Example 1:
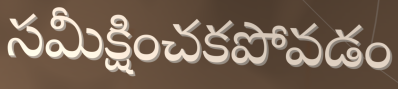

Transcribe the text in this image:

సమీక్షించకపోవడం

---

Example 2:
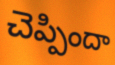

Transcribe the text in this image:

చెప్పిందా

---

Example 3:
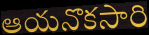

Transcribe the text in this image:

ఆయనొకసారి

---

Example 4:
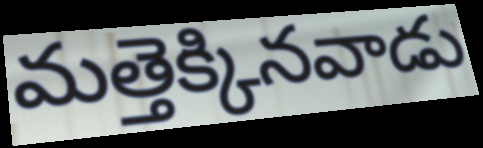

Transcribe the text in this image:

మత్తెక్కినవాడు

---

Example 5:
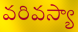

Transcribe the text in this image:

వరివస్యా